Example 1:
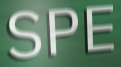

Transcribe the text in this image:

SPE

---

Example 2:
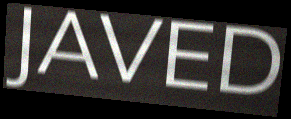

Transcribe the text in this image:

JAVED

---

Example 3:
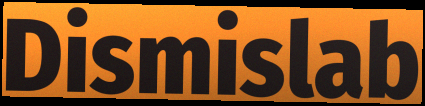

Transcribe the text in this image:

Dismislab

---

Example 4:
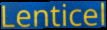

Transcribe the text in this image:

Lenticel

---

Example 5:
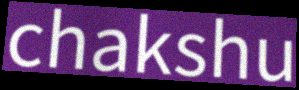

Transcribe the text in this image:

chakshu